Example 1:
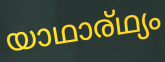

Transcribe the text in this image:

യാഥാര്ഥ്യം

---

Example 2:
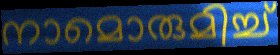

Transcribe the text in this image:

നാമൊരുമിച്ച്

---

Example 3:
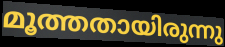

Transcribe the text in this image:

മൂത്തതായിരുന്നു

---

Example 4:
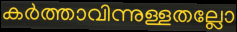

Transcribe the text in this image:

കർത്താവിന്നുള്ളതല്ലോ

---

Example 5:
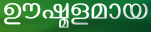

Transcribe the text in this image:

ഊഷ്മളമായ